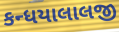
કન્ધયાલાલજી